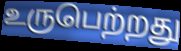
உருபெற்றது